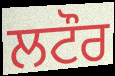
ਲਟੌਰ